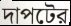
দাপটের